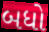
બધો